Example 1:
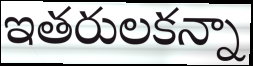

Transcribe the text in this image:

ఇతరులకన్నా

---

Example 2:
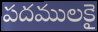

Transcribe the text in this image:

పదములకై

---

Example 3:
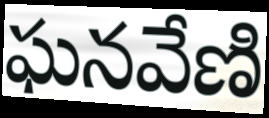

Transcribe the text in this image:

ఘనవేణి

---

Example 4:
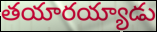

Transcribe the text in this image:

తయారయ్యాడు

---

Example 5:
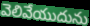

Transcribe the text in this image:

వెలివేయుదును